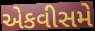
એકવીસમે